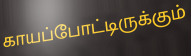
காயப்போட்டிருக்கும்